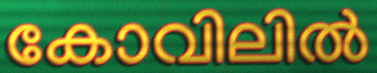
കോവിലിൽ